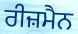
ਰੀਜ਼ਮੈਨ